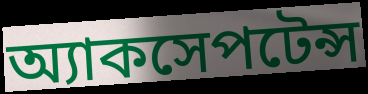
অ্যাকসেপটেন্স